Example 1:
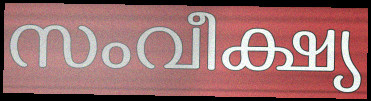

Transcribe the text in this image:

സംവീക്ഷ്യ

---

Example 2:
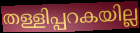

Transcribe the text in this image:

തള്ളിപ്പറകയില്ല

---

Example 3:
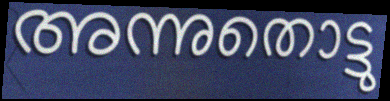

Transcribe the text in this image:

അന്നുതൊട്ടു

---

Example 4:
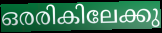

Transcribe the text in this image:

ഒരരികിലേക്കു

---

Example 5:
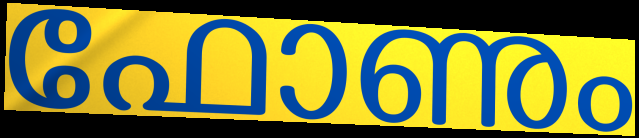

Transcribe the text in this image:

ഫോണും